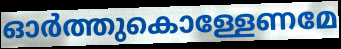
ഓർത്തുകൊള്ളേണമേ